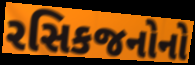
રસિકજનોનો